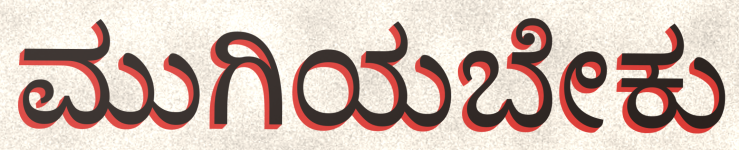
ಮುಗಿಯಬೇಕು